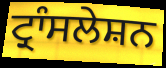
ਟ੍ਰਾੰਸਲੇਸ਼ਨ